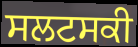
ਸਲਟਸਕੀ